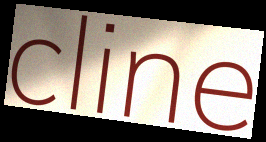
cline